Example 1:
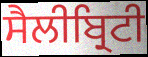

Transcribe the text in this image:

ਸੈਲੀਬ੍ਰਿਟੀ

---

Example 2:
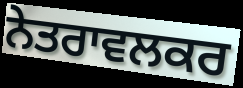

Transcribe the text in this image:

ਨੇਤਰਾਵਲਕਰ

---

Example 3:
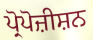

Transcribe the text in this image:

ਪ੍ਰੋਪੋਜ਼ੀਸ਼ਨ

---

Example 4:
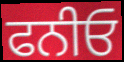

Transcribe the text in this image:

ਫਨੀਓ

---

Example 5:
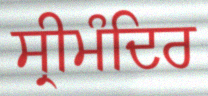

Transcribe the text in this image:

ਸ੍ਰੀਮੰਦਿਰ